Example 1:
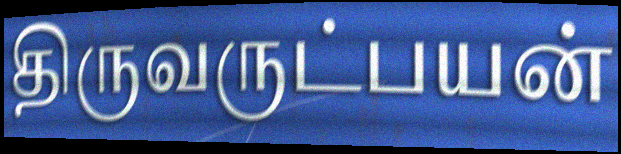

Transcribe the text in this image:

திருவருட்பயன்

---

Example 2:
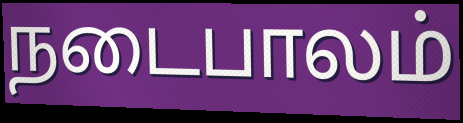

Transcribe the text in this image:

நடைபாலம்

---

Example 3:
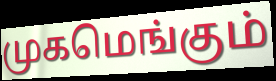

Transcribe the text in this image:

முகமெங்கும்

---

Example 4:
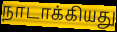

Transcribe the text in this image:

நாடாக்கியது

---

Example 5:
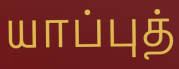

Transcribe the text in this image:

யாப்புத்